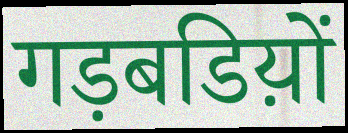
गड़बडिय़ों